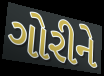
ગોરીને